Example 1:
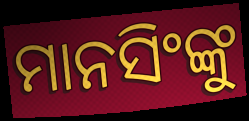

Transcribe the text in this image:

ମାନସିଂଙ୍କୁ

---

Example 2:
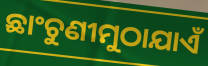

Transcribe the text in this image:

ଛାଂଚୁଣୀମୁଠାଯାଏଁ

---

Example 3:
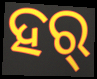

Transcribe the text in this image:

ହର୍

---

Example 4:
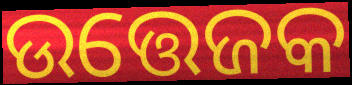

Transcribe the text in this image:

ଉତ୍ତେଜକ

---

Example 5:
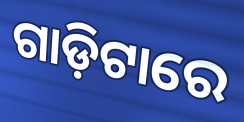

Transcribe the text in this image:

ଗାଡ଼ିଟାରେ